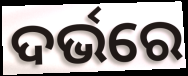
ଦର୍ଭରେ